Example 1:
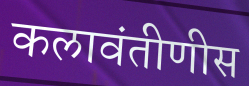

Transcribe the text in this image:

कलावंतीणीस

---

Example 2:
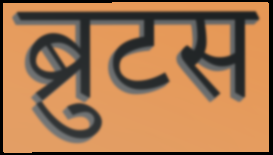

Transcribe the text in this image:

ब्रुटस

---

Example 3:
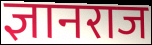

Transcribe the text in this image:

ज्ञानराज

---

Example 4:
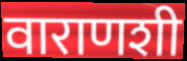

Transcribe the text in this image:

वाराणशी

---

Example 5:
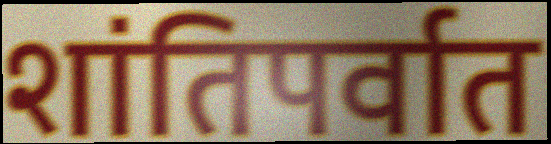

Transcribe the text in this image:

शांतिपर्वात